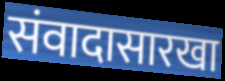
संवादासारखा